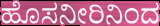
ಹೊಸನೀರಿನಿಂದ